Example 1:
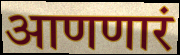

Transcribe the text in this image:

आणणारं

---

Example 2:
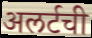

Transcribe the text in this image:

अलर्टची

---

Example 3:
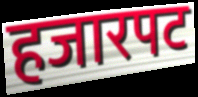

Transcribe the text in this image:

हजारपट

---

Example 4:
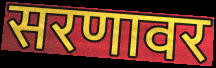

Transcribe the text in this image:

सरणावर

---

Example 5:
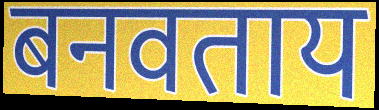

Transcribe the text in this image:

बनवताय